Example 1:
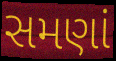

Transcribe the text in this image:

સમણાં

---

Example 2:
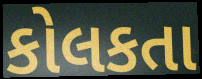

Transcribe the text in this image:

કોલકતા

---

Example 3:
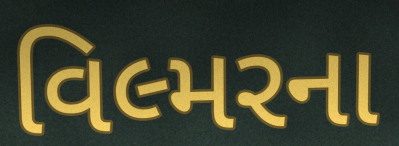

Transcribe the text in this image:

વિલ્મરના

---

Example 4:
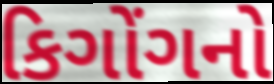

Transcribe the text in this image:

કિગોંગનો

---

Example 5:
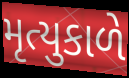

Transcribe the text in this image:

મૃત્યુકાળે